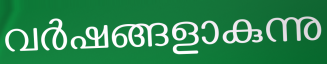
വർഷങ്ങളാകുന്നു